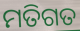
ମତିଗତ